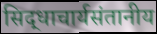
सिद्धाचार्यसंतानीय